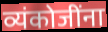
व्यंकोजींना